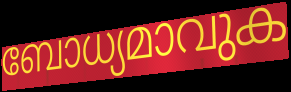
ബോധ്യമാവുക